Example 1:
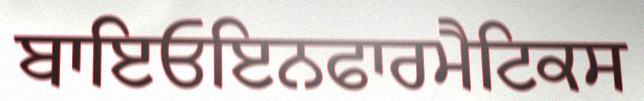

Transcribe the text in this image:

ਬਾਇਓਇਨਫਾਰਮੈਟਿਕਸ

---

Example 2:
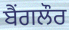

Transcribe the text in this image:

ਬੈੰਗਲੌਰ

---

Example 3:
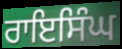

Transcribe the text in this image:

ਰਾਇਸਿੰਘ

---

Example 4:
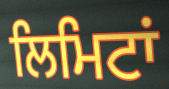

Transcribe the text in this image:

ਲਿਮਿਟਾਂ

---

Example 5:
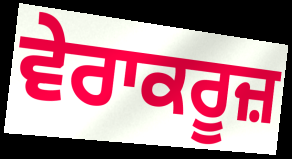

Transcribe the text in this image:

ਵੇਰਾਕਰੂਜ਼